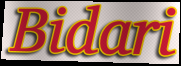
Bidari